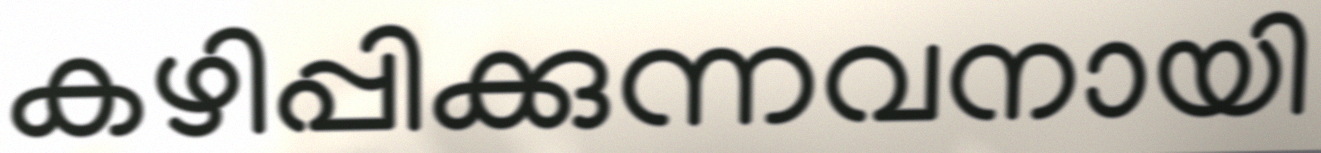
കഴിപ്പിക്കുന്നവനായി